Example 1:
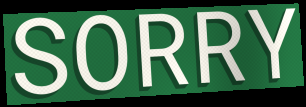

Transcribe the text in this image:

SORRY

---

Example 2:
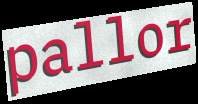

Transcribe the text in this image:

pallor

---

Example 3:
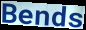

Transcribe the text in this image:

Bends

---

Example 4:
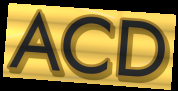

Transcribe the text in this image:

ACD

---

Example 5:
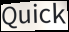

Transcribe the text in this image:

Quick